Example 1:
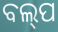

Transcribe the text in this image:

ବଲ୍‍ପ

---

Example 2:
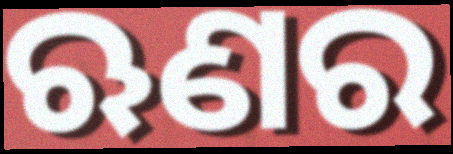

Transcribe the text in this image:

ଋଣର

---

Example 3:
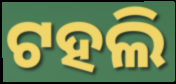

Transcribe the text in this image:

ଟହଲି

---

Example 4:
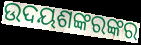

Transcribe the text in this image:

ଉଦୟଶଙ୍କରଙ୍କର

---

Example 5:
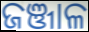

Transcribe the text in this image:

ଜଞ୍ଜାଳ